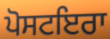
ਪੋਸਟਇਰਾ